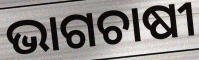
ଭାଗଚାଷୀ